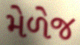
મેળેજ